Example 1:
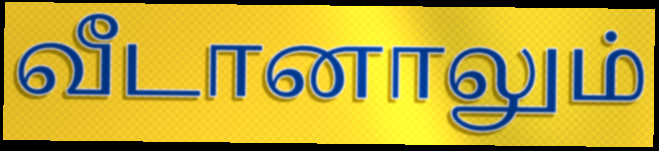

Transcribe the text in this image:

வீடானாலும்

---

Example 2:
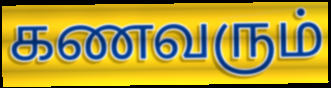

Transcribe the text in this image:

கணவரும்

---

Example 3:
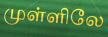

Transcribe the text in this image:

முள்ளிலே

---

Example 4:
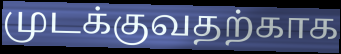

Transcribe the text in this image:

முடக்குவதற்காக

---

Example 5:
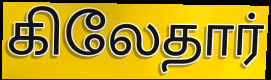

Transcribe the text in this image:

கிலேதார்